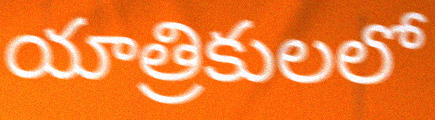
యాత్రికులలో